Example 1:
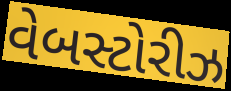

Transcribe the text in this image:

વેબસ્ટોરીઝ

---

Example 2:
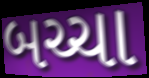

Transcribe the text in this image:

બચ્ચા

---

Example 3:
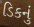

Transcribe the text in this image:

ડિકનું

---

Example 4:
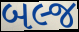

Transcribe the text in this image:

બલ્જ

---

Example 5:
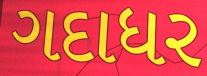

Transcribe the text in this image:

ગદાધર